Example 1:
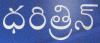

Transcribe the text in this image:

ధరిత్రిన్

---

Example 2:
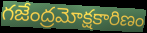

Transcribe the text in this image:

గజేంద్రమోక్షకారిణం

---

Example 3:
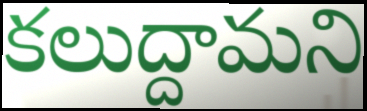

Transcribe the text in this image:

కలుద్దామని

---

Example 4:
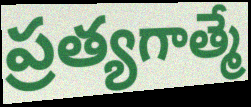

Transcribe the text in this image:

ప్రత్యగాత్మే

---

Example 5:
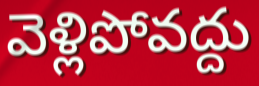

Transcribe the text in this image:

వెళ్లిపోవద్దు